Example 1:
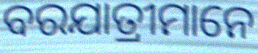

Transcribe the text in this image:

ବରଯାତ୍ରୀମାନେ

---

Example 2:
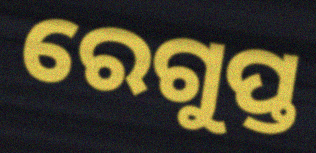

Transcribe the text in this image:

ରେଗୁପ୍ତ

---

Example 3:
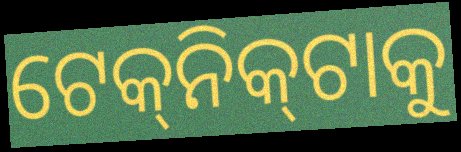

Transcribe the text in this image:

ଟେକ୍‌ନିକ୍‌ଟାକୁ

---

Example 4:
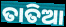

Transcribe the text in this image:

ତାତିଆ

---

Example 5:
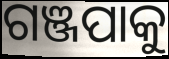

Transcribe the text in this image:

ଗଞ୍ଜପାକୁ